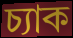
চ্যাক